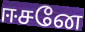
ஈசனே